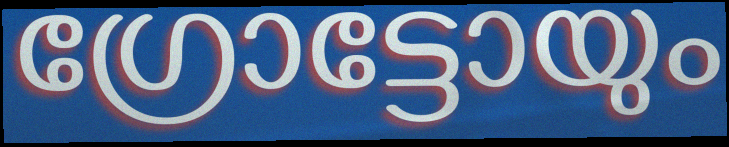
ഗ്രോട്ടോയും